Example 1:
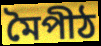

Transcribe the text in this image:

মৈপীঠ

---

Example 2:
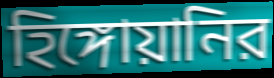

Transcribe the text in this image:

হিঙ্গোয়ানির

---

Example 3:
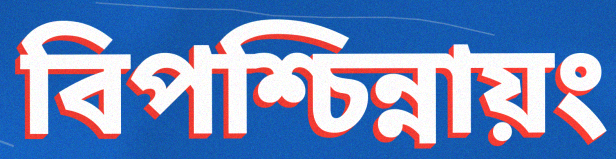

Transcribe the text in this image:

বিপশ্চিন্নায়ং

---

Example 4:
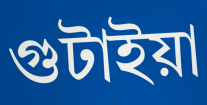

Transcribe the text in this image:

গুটাইয়া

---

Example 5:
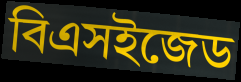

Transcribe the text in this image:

বিএসইজেড